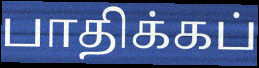
பாதிக்கப்